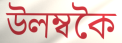
উলম্বকৈ